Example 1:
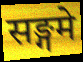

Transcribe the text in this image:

सङ्गमे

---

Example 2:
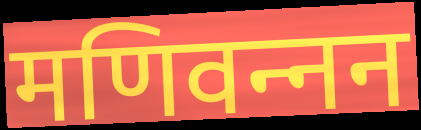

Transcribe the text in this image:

मणिवन्नन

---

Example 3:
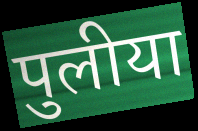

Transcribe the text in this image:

पुलीया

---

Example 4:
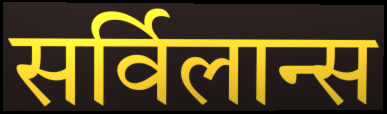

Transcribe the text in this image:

सर्विलान्स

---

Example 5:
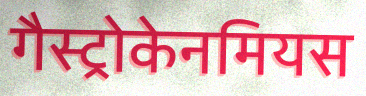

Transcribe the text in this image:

गैस्ट्रोकेनमियस